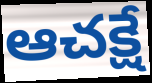
ఆచక్షే